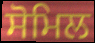
ਸੋਮਿਲ